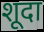
शूदा